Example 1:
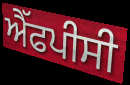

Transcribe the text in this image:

ਐੱਫਪੀਸੀ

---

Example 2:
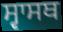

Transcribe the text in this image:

ਸ੍ਵਾਸਥ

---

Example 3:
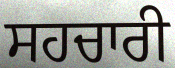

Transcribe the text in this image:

ਸਹਚਾਰੀ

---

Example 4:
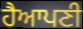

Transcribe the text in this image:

ਹੈਆਪਣੀ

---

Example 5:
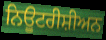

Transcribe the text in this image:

ਨਿਊਟਰੀਸ਼ੀਅਨ